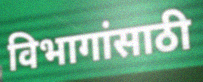
विभागांसाठी